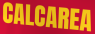
CALCAREA